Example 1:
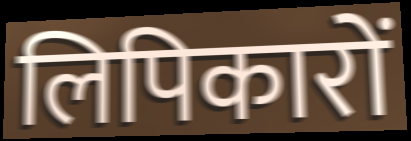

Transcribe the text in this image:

लिपिकारों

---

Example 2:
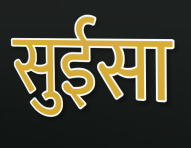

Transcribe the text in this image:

सुईसा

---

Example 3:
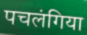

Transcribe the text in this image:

पचलंगिया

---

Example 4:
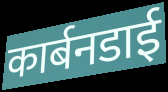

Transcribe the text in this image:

कार्बनडाई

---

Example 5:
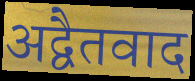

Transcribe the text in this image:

अद्वैतवाद